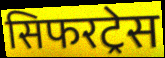
सिफरट्रेस